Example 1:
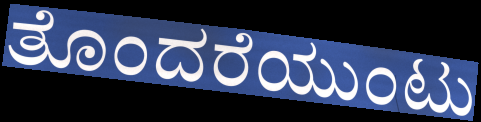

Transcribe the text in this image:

ತೊಂದರೆಯುಂಟು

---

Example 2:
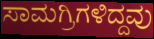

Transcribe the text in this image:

ಸಾಮಗ್ರಿಗಳಿದ್ದವು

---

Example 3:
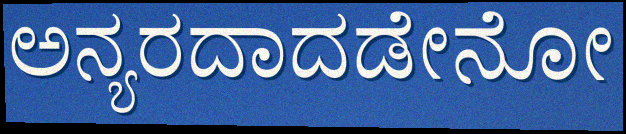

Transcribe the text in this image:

ಅನ್ಯರದಾದಡೇನೋ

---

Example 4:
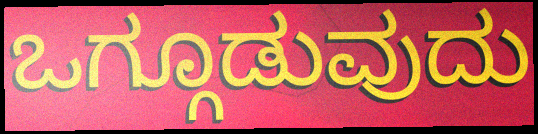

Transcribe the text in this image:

ಒಗ್ಗೂಡುವುದು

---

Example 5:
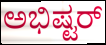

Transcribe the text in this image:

ಅಭಿಷ್ಟರ್